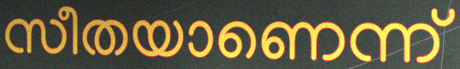
സീതയാണെന്ന്